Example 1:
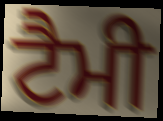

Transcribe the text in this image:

ਟੈਮੀ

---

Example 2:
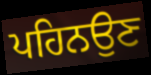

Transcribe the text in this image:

ਪਹਿਨਉਣ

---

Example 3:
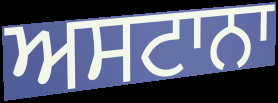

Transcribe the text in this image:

ਅਸਟਾਨਾ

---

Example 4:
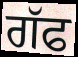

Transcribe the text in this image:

ਗੱਫ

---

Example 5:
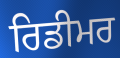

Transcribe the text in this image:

ਰਿਡੀਮਰ